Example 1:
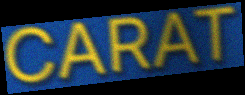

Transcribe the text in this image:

CARAT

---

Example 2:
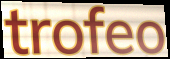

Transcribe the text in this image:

trofeo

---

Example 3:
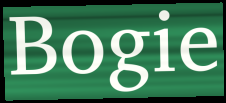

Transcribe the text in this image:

Bogie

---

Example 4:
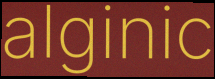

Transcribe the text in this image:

alginic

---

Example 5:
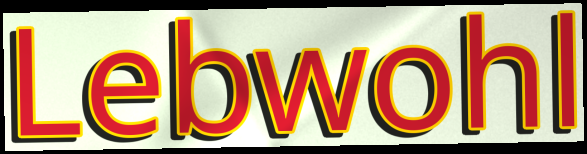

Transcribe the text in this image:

Lebwohl